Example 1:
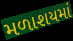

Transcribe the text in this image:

મળાશયમાં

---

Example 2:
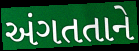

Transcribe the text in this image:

અંગતતાને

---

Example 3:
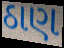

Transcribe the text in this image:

ઠાણ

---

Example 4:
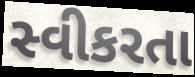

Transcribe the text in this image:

સ્વીકરતા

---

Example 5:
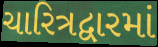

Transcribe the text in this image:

ચારિત્રદ્વારમાં